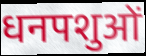
धनपशुओं